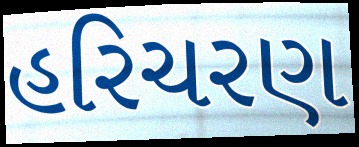
હરિચરણ